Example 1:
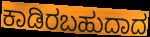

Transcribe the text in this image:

ಕಾಡಿರಬಹುದಾದ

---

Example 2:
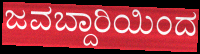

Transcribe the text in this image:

ಜವಬ್ದಾರಿಯಿಂದ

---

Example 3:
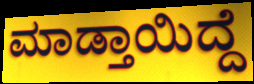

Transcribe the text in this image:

ಮಾಡ್ತಾಯಿದ್ದೆ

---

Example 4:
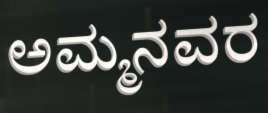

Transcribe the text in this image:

ಅಮ್ಮನವರ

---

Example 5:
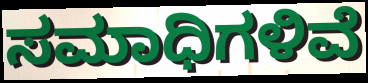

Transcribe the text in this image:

ಸಮಾಧಿಗಳಿವೆ